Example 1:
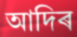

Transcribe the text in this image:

আদিৰ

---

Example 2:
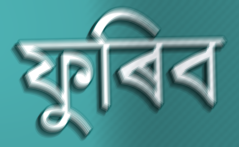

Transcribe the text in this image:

ফুৰিব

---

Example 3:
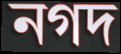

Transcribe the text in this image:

নগদ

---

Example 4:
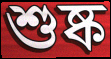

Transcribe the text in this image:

শুষ্ক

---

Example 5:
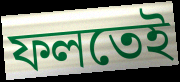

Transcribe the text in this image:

ফলতেই